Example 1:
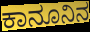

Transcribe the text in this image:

ಕಾನೂನಿನ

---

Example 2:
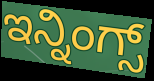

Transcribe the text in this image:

ಇನ್ನಿಂಗ್ಸ್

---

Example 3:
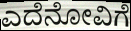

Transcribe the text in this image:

ಎದೆನೋವಿಗೆ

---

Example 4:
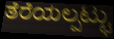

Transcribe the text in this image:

ತೆರೆಯಲ್ಪಟ್ಟು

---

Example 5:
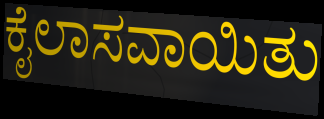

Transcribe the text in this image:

ಕೈಲಾಸವಾಯಿತು